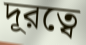
দূরত্বে